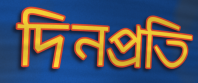
দিনপ্রতি